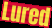
Lured